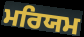
ਮਰਿਯਮ